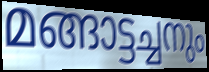
മങ്ങാട്ടച്ചനും